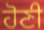
ਹੋਣੀ